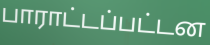
பாராட்டப்பட்டன